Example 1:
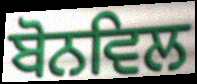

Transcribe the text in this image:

ਬੋਨਵਿਲ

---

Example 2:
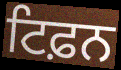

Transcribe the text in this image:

ਟਿਫ਼ਨ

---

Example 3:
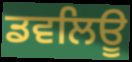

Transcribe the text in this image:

ਡਵਲਿਊ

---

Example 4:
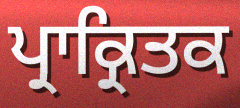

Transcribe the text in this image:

ਪ੍ਰਾਕ੍ਰਿਤਕ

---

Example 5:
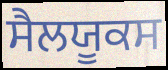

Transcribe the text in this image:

ਸੈਲਯੂਕਸ